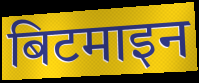
बिटमाइन